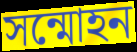
সন্মোহন